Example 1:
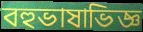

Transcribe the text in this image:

বহুভাষাভিজ্ঞ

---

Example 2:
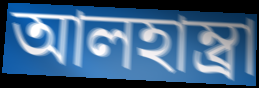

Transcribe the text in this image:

আলহাম্ব্রা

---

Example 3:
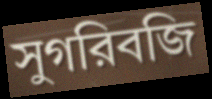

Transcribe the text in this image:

সুগরিবজি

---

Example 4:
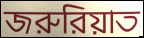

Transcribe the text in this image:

জরুরিয়াত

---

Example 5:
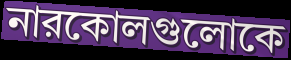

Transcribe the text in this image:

নারকোলগুলোকে